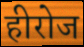
हीरोज